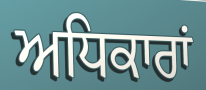
ਅਧਿਕਾਰਾਂ